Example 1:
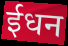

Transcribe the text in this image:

ईधन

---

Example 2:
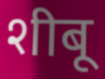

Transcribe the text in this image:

शीबू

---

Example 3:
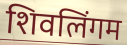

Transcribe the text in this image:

शिवलिंगम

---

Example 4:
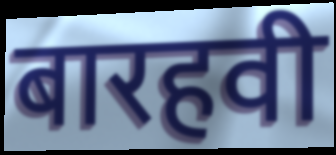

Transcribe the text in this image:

बारहवी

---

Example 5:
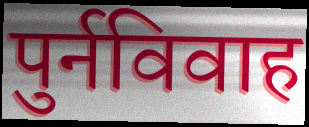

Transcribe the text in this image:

पुर्नविवाह